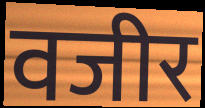
वजीर